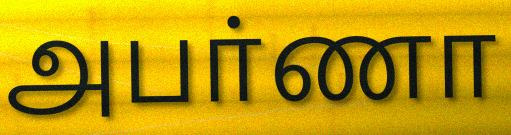
அபர்ணா